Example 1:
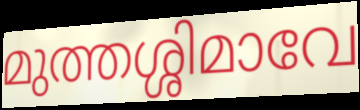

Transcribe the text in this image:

മുത്തശ്ശിമാവേ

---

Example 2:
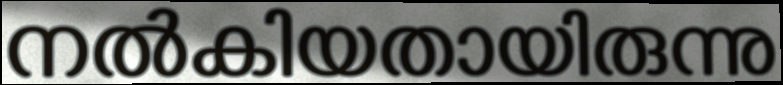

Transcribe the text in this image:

നൽകിയതായിരുന്നു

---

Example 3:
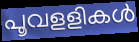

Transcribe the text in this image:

പൂവളളികൾ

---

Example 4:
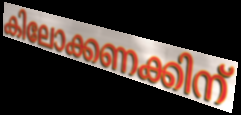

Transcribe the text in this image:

കിലോക്കണക്കിന്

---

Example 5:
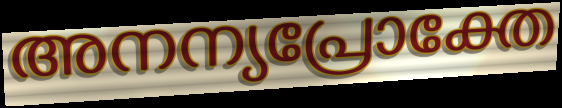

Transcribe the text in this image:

അനന്യപ്രോക്തേ